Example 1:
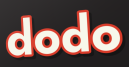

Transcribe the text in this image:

dodo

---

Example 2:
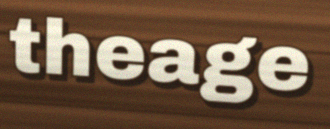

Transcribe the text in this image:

theage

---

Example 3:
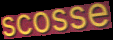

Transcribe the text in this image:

scosse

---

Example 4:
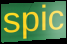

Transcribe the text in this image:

spic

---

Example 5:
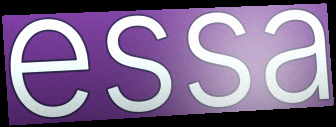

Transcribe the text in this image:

essa